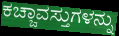
ಕಚ್ಚಾವಸ್ತುಗಳನ್ನು